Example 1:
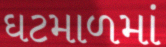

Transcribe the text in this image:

ઘટમાળમાં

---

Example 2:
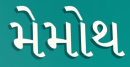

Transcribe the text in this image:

મેમોથ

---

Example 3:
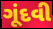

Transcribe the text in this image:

ગૂંદવી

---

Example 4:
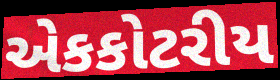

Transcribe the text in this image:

એકકોટરીય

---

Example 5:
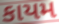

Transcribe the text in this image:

કાયમ